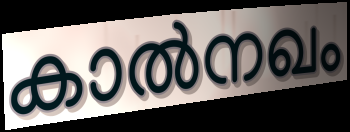
കാൽനഖം